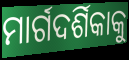
ମାର୍ଗଦର୍ଶିକାକୁ